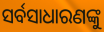
ସର୍ବସାଧାରଣଙ୍କୁ